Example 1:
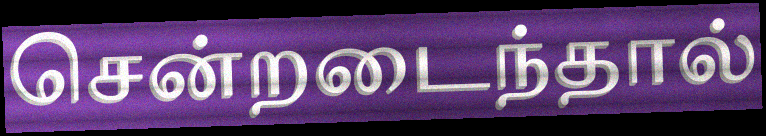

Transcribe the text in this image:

சென்றடைந்தால்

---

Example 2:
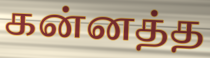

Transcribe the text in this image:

கன்னத்த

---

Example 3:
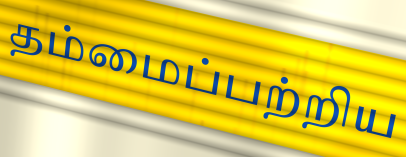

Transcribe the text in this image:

தம்மைப்பற்றிய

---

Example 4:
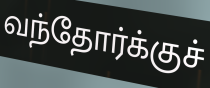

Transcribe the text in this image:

வந்தோர்க்குச்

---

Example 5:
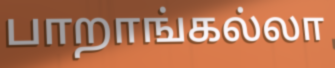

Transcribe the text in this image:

பாறாங்கல்லா